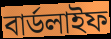
বার্ডলাইফ